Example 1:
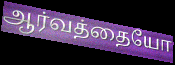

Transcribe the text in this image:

ஆர்வத்தையோ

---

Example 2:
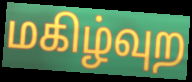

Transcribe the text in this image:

மகிழ்வுற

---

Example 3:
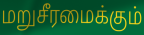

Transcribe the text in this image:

மறுசீரமைக்கும்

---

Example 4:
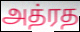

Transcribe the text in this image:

அத்ரத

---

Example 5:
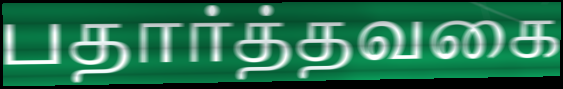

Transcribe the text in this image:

பதார்த்தவகை